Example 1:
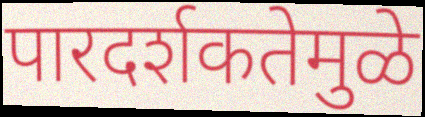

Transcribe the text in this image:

पारदर्शकतेमुळे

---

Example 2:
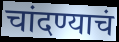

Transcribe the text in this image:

चांदण्याचं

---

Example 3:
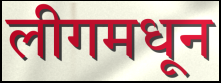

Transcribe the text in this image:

लीगमधून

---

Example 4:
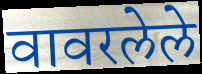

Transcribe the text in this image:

वावरलेले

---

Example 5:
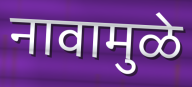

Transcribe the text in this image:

नावामुळे